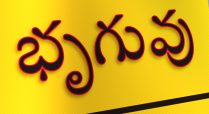
భృగువు